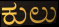
ಕುಲು